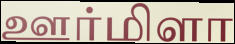
ஊர்மிளா